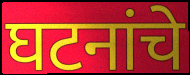
घटनांचे